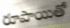
రూపాయితో